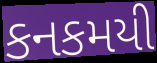
કનકમયી